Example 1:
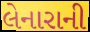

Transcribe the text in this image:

લેનારાની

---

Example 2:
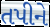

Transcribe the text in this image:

તપીને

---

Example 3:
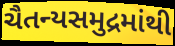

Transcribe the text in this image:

ચૈતન્યસમુદ્રમાંથી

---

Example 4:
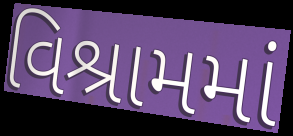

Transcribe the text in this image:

વિશ્રામમાં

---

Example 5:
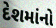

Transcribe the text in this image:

દેશમાંનો